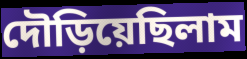
দৌড়িয়েছিলাম